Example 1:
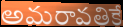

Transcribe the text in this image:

అమరావతికే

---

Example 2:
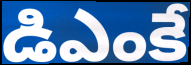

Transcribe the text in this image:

డిఎంకే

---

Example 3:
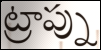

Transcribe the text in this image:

ట్రాప్ను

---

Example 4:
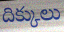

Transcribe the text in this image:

దిక్కులు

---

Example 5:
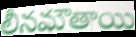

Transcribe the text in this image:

లీనమౌతాయి